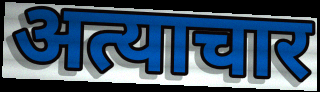
अत्याचार